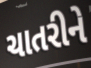
ચાતરીને